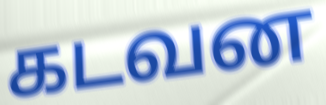
கடவன